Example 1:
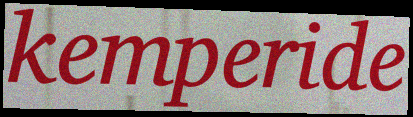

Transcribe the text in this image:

kemperide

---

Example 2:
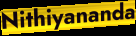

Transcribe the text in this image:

Nithiyananda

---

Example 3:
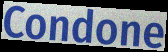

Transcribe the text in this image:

Condone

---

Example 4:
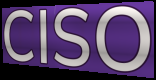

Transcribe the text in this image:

CISO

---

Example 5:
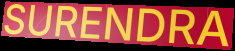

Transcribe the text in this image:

SURENDRA